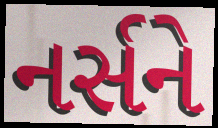
નર્સને